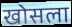
खोसला